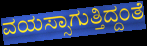
ವಯಸ್ಸಾಗುತ್ತಿದ್ದಂತೆ